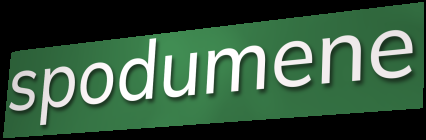
spodumene